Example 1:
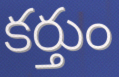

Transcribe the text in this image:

కర్తుం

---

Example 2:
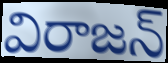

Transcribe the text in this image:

విరాజన్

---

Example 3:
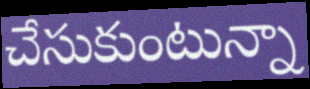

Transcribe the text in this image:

చేసుకుంటున్నా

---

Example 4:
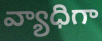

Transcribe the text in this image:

వ్యాధిగా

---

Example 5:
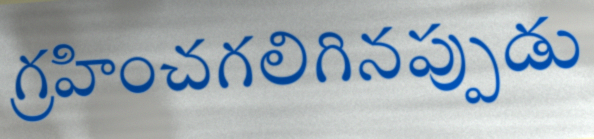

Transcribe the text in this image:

గ్రహించగలిగినప్పుడు